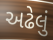
અઢેલું